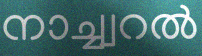
നാച്ച്വറൽ